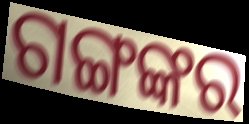
ଗଙ୍ଗଙ୍କର